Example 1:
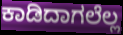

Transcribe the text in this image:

ಕಾಡಿದಾಗಲೆಲ್ಲ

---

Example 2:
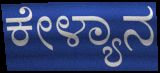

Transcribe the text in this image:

ಕೇಳ್ಯಾನ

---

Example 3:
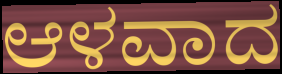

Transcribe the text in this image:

ಆಳವಾದ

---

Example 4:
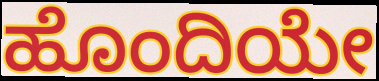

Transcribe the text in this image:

ಹೊಂದಿಯೇ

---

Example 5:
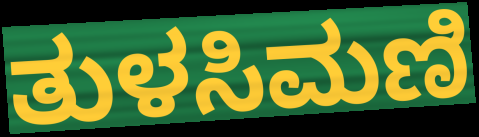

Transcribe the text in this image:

ತುಳಸಿಮಣಿ